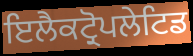
ਇਲੈਕਟ੍ਰੋਪਲੇਟਿਡ